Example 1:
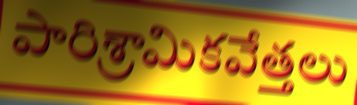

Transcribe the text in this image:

పారిశ్రామికవేత్తలు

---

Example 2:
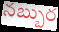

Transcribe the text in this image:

నబ్బుర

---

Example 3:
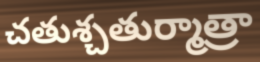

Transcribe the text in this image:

చతుశ్చతుర్మాత్రా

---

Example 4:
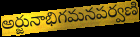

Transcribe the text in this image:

అర్జునాభిగమనపర్వణి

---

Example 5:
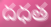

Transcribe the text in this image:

దధత